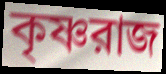
কৃষ্ণরাজ